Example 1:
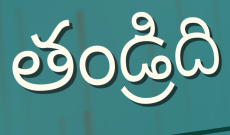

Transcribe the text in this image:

తండ్రిది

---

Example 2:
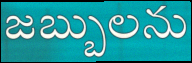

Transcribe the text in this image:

జబ్బులను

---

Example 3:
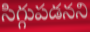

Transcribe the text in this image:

సిగ్గుపడనని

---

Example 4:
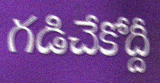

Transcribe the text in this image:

గడిచేకోద్దీ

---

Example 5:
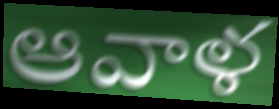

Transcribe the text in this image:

ఆవాళ